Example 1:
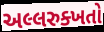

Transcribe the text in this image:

અલ્લરુક્ખતો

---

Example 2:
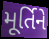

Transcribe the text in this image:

મૂર્તિને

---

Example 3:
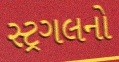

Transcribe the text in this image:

સ્ટ્રગલનો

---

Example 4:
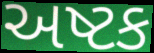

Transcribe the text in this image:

અષ્ટક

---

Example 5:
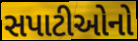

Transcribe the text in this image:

સપાટીઓનો